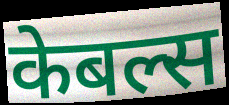
केबल्स